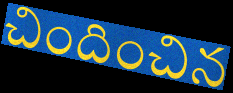
చిందించిన